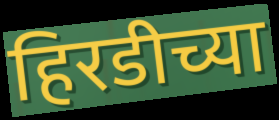
हिरडीच्या